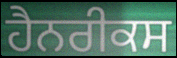
ਹੈਨਰੀਕਸ